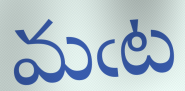
మఁట